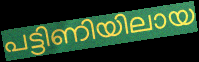
പട്ടിണിയിലായ